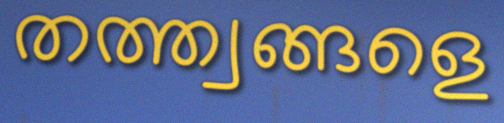
തത്ത്വങ്ങളെ